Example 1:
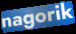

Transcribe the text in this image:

nagorik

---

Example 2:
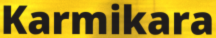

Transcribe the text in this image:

Karmikara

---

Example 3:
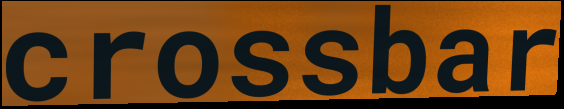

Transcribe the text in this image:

crossbar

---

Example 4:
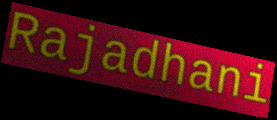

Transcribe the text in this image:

Rajadhani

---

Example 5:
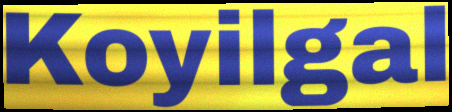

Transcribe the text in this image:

Koyilgal